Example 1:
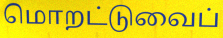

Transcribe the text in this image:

மொறட்டுவைப்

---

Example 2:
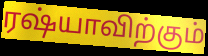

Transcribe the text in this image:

ரஷ்யாவிற்கும்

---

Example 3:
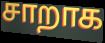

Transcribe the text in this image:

சாறாக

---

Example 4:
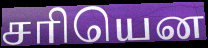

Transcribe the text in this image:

சரியென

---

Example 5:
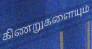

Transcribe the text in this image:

கிணறுகளையும்